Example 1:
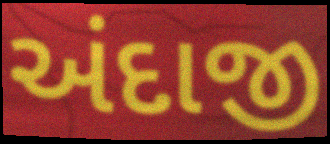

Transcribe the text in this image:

અંદાજી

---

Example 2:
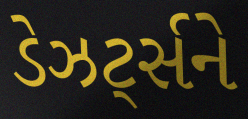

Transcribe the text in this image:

ડેઝર્ટ્સને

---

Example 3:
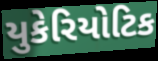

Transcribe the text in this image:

યુકેરિયોટિક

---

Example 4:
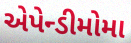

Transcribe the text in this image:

એપેન્ડીમોમા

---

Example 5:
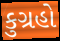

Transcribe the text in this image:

કુગ્રહો